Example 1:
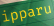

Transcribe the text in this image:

ipparu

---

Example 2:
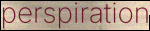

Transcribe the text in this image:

perspiration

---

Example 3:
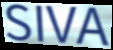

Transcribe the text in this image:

SIVA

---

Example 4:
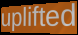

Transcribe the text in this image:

uplifted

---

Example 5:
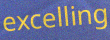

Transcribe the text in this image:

excelling